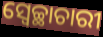
ସ୍ୱେଚ୍ଛାଚାରୀ